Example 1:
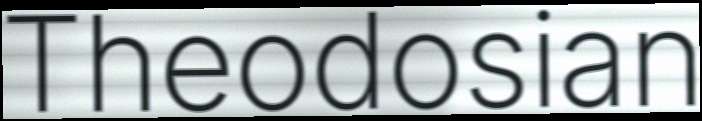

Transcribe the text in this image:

Theodosian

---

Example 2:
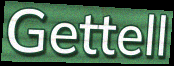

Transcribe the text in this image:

Gettell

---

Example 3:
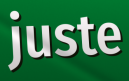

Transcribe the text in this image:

juste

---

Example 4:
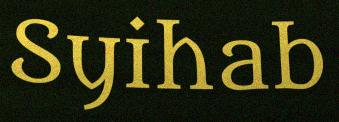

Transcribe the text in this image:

Syihab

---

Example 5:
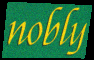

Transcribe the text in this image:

nobly